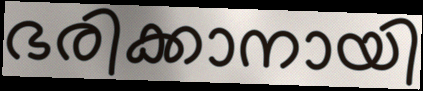
ഭരിക്കാനായി